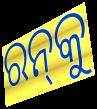
ରନ୍‌କୁ